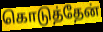
கொடுத்தேன்